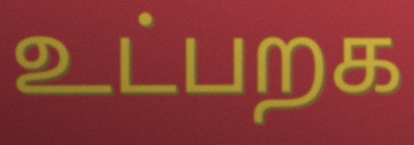
உட்பறக